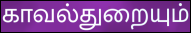
காவல்துறையும்